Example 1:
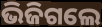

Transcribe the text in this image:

ଭିଜିଗଲେ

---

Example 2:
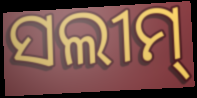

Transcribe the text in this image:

ସଲୀମ୍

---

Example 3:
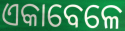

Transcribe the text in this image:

ଏକାବେଳେ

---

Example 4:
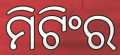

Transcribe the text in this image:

ମିଟିଂର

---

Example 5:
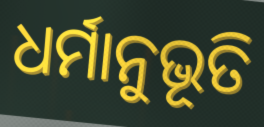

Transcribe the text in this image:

ଧର୍ମାନୁଭୂତି